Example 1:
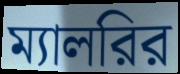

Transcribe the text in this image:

ম্যালরির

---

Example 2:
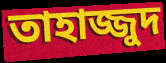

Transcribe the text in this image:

তাহাজ্জুদ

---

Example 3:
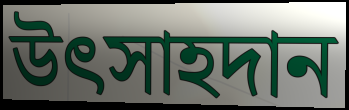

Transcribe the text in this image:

উৎসাহদান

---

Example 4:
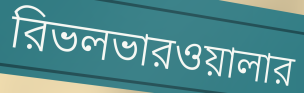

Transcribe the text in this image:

রিভলভারওয়ালার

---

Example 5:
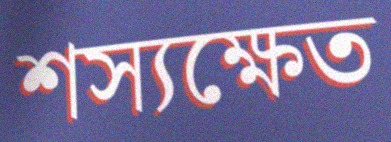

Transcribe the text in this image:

শস্যক্ষেত